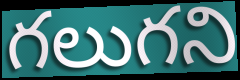
గలుగని